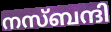
നസ്ബന്ദി